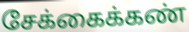
சேக்கைக்கண்